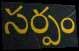
సర్పం